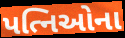
પત્નિઓના